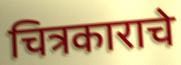
चित्रकाराचे